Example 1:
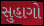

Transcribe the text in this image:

સુહાગો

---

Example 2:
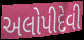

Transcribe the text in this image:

અલોપીદેવી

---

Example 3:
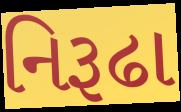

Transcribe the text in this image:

નિરૂઢા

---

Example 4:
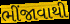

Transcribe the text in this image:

ભીંજાવાથી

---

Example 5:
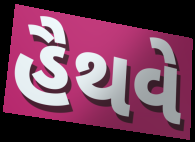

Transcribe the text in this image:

હૈથવે